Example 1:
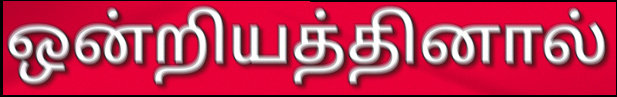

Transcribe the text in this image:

ஒன்றியத்தினால்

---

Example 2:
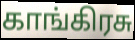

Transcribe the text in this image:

காங்கிரசு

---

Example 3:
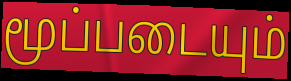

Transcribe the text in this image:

மூப்படையும்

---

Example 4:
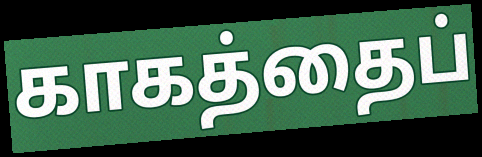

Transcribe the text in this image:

காகத்தைப்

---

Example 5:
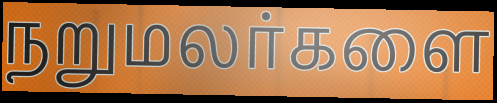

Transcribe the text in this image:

நறுமலர்களை